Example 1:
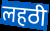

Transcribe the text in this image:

लहठी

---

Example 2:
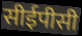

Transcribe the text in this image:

सीईपीसी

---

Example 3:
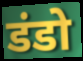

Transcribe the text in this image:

डंडो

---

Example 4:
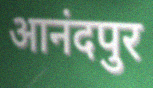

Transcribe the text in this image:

आनंदपुर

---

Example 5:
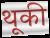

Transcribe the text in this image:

थूकी